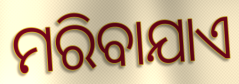
ମରିବାଯାଏ